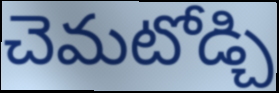
చెమటోడ్చి